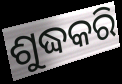
ଶୁଦ୍ଧକରି